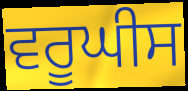
ਵਰੂਘੀਸ